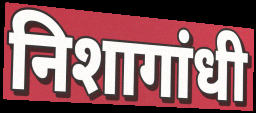
निशागांधी